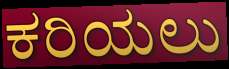
ಕರಿಯಲು